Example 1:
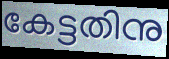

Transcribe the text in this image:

കേട്ടതിനു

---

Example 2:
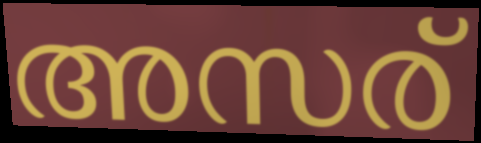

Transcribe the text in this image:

അസര്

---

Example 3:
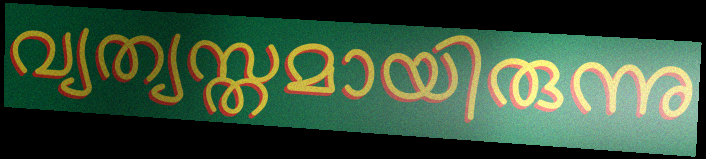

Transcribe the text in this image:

വ്യത്യസ്തമായിരുന്നു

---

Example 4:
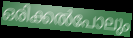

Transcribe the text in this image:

ഒരിക്കൽപോലും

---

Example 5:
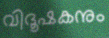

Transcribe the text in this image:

വിദൂഷകനും